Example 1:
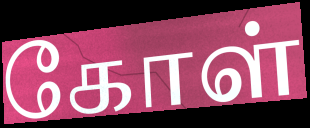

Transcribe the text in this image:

கோள்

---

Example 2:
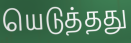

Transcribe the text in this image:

யெடுத்தது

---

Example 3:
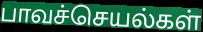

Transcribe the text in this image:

பாவச்செயல்கள்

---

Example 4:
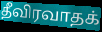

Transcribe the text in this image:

தீவிரவாதக்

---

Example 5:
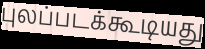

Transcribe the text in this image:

புலப்படக்கூடியது